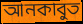
আনকাবুত